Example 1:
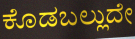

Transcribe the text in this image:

ಕೊಡಬಲ್ಲುದೇ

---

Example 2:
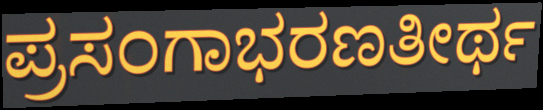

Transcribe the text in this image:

ಪ್ರಸಂಗಾಭರಣತೀರ್ಥ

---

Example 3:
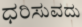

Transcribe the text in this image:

ಧರಿಸುವದು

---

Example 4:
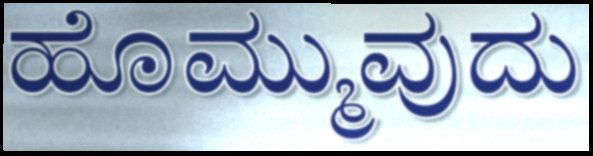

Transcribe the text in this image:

ಹೊಮ್ಮುವುದು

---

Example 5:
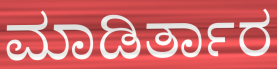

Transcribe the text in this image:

ಮಾಡಿರ್ತಾರ